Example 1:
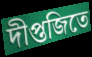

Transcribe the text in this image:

দীপ্তজিতে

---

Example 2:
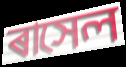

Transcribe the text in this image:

ৰাসেল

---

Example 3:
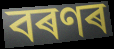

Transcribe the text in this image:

বৰণৰ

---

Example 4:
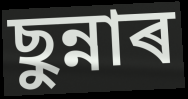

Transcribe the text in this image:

ছুন্নাৰ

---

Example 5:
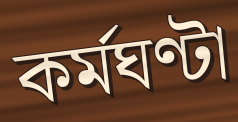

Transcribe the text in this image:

কৰ্মঘণ্টা